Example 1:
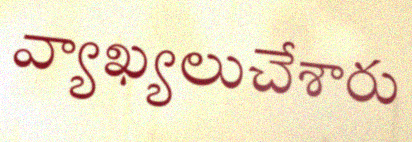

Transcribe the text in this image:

వ్యాఖ్యలుచేశారు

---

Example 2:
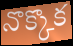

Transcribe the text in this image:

నొక్కొక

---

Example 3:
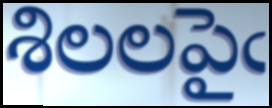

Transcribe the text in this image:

శిలలపైఁ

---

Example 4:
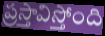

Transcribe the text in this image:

ప్రస్తావిస్తోంది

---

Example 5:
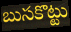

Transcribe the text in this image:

బుసకొట్టు